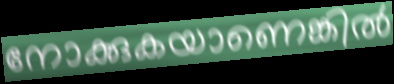
നോക്കുകയാണെങ്കിൽ